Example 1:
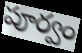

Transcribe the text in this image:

పూర్వం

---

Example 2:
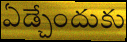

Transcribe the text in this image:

ఏడ్చేందుకు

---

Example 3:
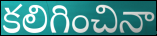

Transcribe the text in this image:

కలిగించినా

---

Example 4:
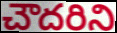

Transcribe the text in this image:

చౌదరిని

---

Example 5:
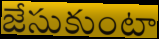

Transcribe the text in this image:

జేసుకుంటా